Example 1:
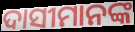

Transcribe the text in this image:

ଦାସୀମାନଙ୍କ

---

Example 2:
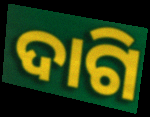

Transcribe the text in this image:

ଦାଗି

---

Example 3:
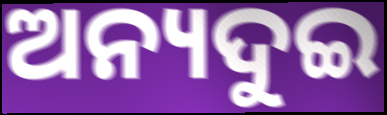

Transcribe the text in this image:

ଅନ୍ୟଦୁଇ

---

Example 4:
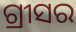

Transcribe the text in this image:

ଗ୍ରୀସର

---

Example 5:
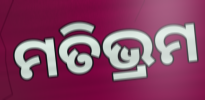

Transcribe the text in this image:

ମତିଭ୍ରମ